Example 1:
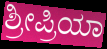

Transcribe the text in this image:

ಶ್ರೀಪ್ರಿಯಾ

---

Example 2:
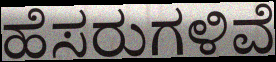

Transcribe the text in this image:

ಹೆಸರುಗಳಿವೆ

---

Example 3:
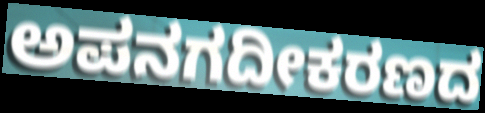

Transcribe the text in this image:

ಅಪನಗದೀಕರಣದ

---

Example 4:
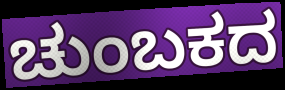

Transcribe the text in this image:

ಚುಂಬಕದ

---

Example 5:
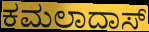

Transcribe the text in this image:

ಕಮಲಾದಾಸ್